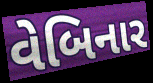
વેબિનાર